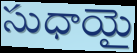
సుధాయై